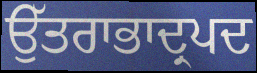
ਉੱਤਰਾਭਾਦ੍ਰਪਦ